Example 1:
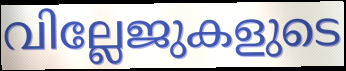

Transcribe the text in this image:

വില്ലേജുകളുടെ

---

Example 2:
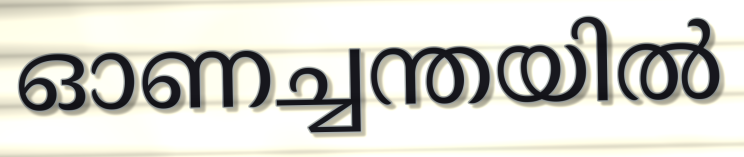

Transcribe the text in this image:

ഓണച്ചന്തയിൽ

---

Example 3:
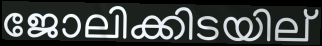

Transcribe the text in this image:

ജോലിക്കിടയില്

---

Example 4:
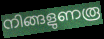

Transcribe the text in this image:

നിങ്ങളുണരൂ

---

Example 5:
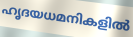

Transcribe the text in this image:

ഹൃദയധമനികളിൽ